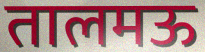
तालमऊ